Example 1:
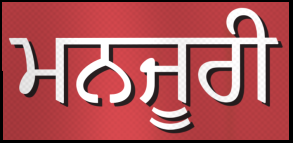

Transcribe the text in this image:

ਮਨਜੂਰੀ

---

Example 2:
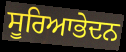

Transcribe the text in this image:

ਸੂਰਿਆਭੇਦਨ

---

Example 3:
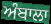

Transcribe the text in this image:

ਅੰਬਾਲਾ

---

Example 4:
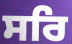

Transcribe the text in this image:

ਸਰਿ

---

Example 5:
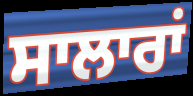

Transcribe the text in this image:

ਸਾਲਾਰਾਂ